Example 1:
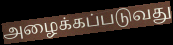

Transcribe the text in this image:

அழைக்கப்படுவது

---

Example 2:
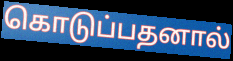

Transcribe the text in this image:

கொடுப்பதனால்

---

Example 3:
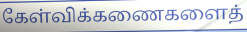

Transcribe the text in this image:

கேள்விக்கணைகளைத்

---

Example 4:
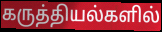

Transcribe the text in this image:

கருத்தியல்களில்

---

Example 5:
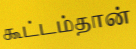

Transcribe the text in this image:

கூட்டம்தான்